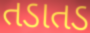
તડાતડ